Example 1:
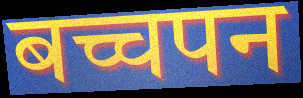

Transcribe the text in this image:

बच्चपन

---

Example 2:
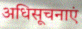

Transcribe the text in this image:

अधिसूचनाएं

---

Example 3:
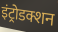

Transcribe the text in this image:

इंट्रोडक्शन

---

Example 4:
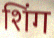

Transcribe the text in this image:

शिंग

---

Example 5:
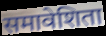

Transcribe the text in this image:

समावेशिता